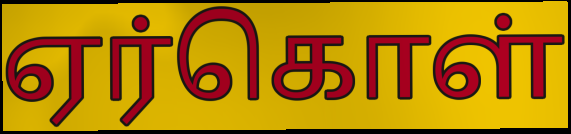
ஏர்கொள்